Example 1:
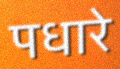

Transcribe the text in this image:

पधारे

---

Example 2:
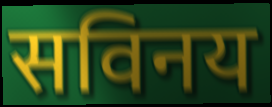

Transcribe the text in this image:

सविनय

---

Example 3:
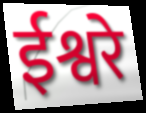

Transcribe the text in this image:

ईश्वरे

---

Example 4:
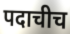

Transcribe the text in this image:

पदाचीच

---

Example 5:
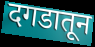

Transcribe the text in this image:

दगडातून